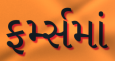
ફર્મ્સમાં